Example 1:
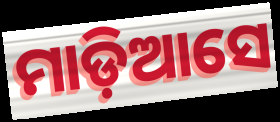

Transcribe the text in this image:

ମାଡ଼ିଆସେ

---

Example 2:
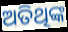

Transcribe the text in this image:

ଅତିଥିଙ୍କ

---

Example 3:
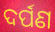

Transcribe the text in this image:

ଦର୍ପଣ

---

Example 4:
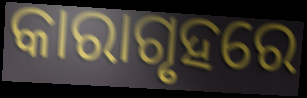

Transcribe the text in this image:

କାରାଗୃହରେ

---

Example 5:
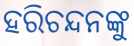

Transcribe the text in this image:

ହରିଚନ୍ଦନଙ୍କୁ